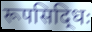
रूपसिद्धिः